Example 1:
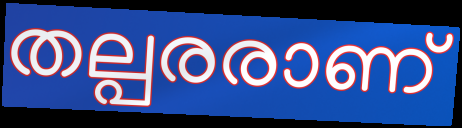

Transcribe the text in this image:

തല്പരരാണ്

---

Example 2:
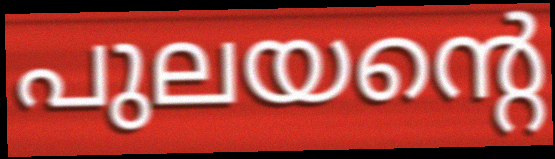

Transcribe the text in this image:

പുലയന്റെ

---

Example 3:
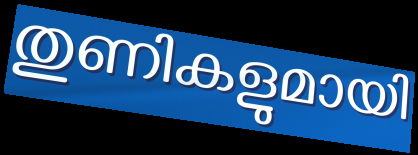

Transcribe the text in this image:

തുണികളുമായി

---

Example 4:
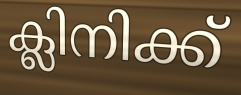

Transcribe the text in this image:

ക്ലിനിക്ക്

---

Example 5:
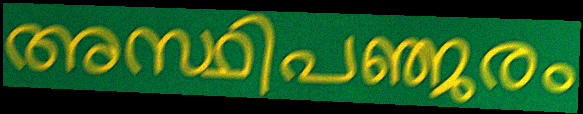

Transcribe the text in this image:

അസ്ഥിപഞ്ജരം